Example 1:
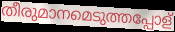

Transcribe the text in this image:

തീരുമാനമെടുത്തപ്പോള്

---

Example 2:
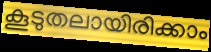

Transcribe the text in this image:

കൂടുതലായിരിക്കാം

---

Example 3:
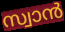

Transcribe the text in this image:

സ്വാൻ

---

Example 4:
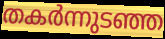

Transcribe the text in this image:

തകർന്നുടഞ്ഞ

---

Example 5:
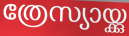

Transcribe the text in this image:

ത്രേസ്യായ്ക്കു